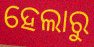
ହେଲାରୁ